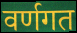
वर्णगत